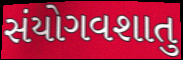
સંયોગવશાતુ